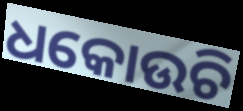
ଧକୋଉଚି